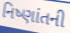
નિષ્ણાંતની